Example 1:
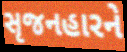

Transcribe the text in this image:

સૃજનહારને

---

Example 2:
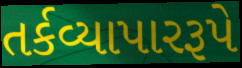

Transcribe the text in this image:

તર્કવ્યાપારરૂપે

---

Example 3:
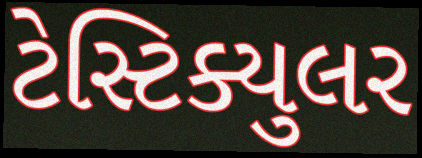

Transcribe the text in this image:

ટેસ્ટિક્યુલર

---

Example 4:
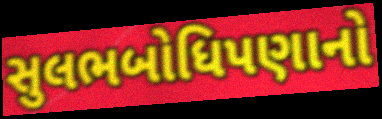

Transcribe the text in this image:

સુલભબોધિપણાનો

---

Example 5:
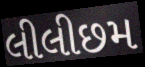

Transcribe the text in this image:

લીલીછમ